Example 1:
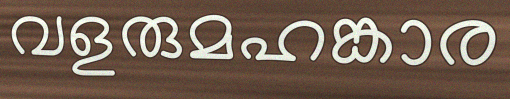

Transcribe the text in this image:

വളരുമഹങ്കാര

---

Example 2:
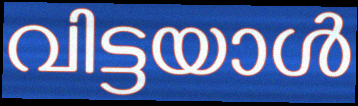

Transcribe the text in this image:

വിട്ടയാൾ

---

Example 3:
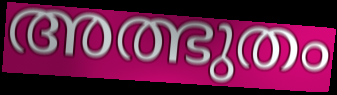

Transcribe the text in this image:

അത്ഭുതം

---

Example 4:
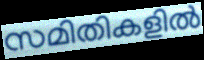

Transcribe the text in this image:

സമിതികളിൽ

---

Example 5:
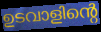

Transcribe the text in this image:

ഉടവാളിന്റെ